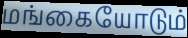
மங்கையோடும்